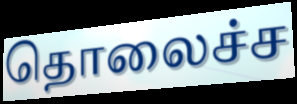
தொலைச்ச